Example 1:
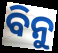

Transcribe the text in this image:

ବିନୁ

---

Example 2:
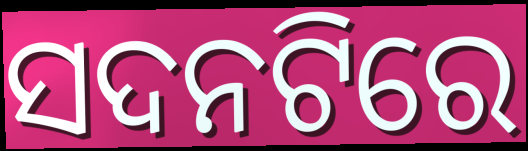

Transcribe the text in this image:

ସଦନଟିରେ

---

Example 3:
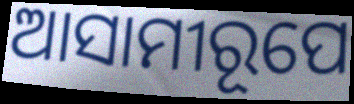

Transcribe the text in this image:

ଆସାମୀରୂପେ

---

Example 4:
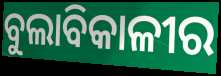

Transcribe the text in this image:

ବୁଲାବିକାଳୀର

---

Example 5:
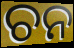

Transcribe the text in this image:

ଚନ